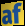
af